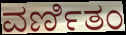
ವರ್ಣಿತಂ